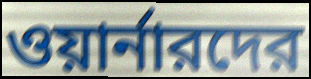
ওয়ার্নারদের